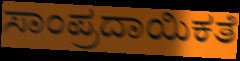
ಸಾಂಪ್ರದಾಯಿಕತೆ